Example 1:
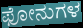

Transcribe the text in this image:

ಫೋನುಗಳ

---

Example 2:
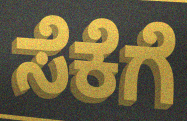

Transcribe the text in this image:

ಸೆಕೆಗೆ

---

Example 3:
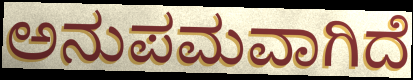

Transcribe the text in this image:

ಅನುಪಮವಾಗಿದೆ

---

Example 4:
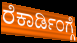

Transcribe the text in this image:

ರೆಕಾರ್ಡಿಂಗ್ಗೆ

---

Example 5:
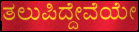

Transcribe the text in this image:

ತಲುಪಿದ್ದೇವೆಯೇ